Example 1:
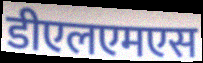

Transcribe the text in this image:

डीएलएमएस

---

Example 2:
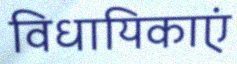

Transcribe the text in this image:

विधायिकाएं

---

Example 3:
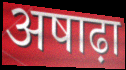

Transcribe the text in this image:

अषाढ़ा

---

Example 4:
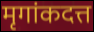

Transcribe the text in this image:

मृगांकदत्त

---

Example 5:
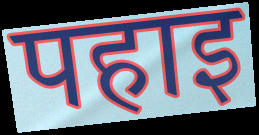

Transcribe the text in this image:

पहाइ